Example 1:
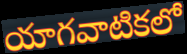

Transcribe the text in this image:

యాగవాటికలో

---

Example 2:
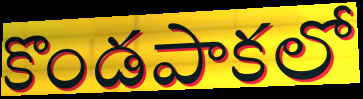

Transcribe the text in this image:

కొండపాకలో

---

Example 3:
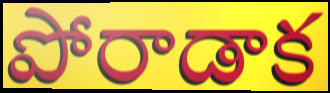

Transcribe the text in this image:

పోరాడాక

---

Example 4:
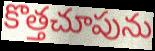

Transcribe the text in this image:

కొత్తచూపును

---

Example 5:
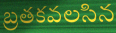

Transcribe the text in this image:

బ్రతకవలసిన